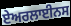
ਏਅਰਲਾਈਨਸ